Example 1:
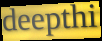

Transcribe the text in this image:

deepthi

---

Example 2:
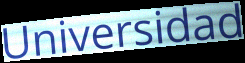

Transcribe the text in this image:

Universidad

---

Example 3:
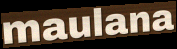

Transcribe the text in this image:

maulana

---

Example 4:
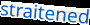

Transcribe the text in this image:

straitened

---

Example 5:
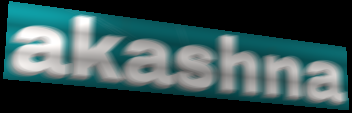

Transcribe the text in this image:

akashna